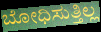
ಬೋಧಿಸುತ್ತಿಲ್ಲ